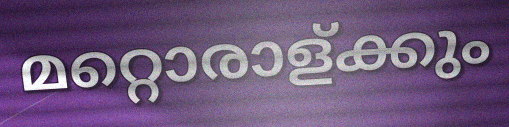
മറ്റൊരാള്ക്കും